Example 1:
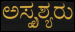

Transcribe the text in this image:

ಅಸ್ಪೃಶ್ಯರು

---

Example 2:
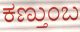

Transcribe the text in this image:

ಕಣ್ತುಂಬ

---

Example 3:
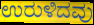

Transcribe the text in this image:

ಉರುಳಿದವು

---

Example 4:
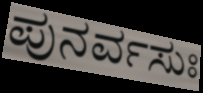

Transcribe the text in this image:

ಪುನರ್ವಸುಃ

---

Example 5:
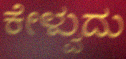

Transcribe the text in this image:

ಕೇಳ್ವುದು